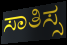
ಸಾತಿಸ್ಸ